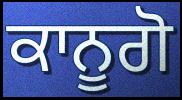
ਕਾਨੂਗੋ